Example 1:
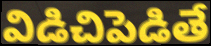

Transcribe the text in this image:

విడిచిపెడితే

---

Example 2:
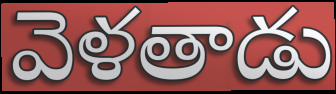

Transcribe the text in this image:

వెళతాడు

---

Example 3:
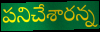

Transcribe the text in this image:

పనిచేశారన్న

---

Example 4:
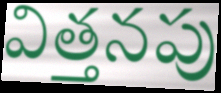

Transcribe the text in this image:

విత్తనపు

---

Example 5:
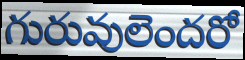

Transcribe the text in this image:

గురువులెందరో